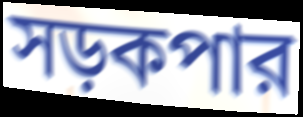
সড়কপার